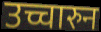
उच्चारुन